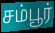
சம்பூர்